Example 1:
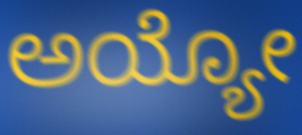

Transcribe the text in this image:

ಅಯ್ಯೋ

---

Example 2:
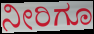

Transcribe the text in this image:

ನೀರಿಗೂ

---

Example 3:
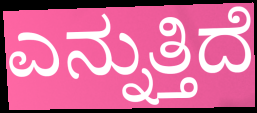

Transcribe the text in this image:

ಎನ್ನುತ್ತಿದೆ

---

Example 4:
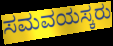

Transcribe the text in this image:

ಸಮವಯಸ್ಕರು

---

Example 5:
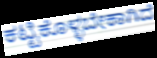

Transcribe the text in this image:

ಕಟ್ಟಿಕೊಳ್ಳಬೇಕಾಗಿದೆ